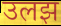
उलझ